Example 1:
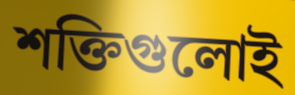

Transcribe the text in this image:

শক্তিগুলোই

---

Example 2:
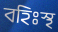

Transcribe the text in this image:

বহিঃস্থ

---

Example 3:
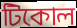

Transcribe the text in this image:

টিকোল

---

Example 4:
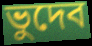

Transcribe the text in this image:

ভুদেব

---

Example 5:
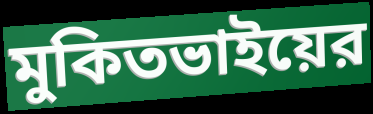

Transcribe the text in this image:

মুকিতভাইয়ের